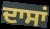
ਦਾਸਾਂ